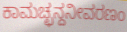
ಕಾಮಚ್ಛನ್ದನೀವರಣಂ